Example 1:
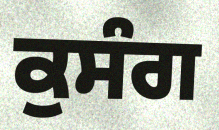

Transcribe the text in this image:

ਕੁਸੰਗ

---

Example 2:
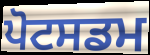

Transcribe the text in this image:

ਪੋਟਸਡਮ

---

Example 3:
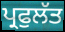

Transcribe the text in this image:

ਪ੍ਰਫੁਲੱਤ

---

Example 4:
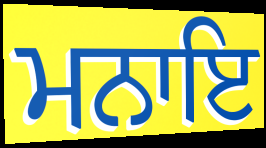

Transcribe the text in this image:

ਮਨਾਇ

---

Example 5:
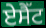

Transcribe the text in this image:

ਏਸੈੱਟ